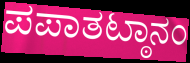
ಪಪಾತಟ್ಠಾನಂ